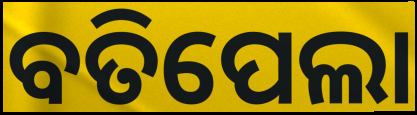
ବତିପେଲା